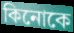
কিনোকে